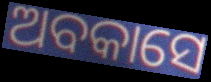
ଅବକାସେ